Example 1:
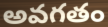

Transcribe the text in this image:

అవగతం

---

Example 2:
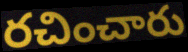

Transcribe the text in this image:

రచించారు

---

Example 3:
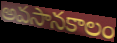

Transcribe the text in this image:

అవసానకాలం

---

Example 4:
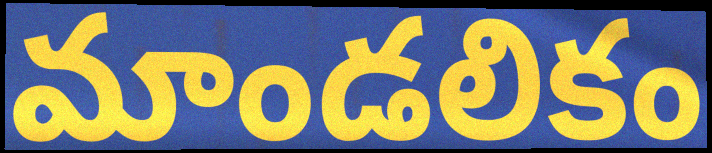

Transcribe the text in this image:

మాండలికం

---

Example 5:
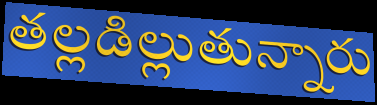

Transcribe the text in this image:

తల్లడిల్లుతున్నారు